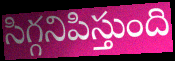
సిగ్గనిపిస్తుంది